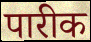
पारीक